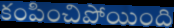
కంపించిపోయింది